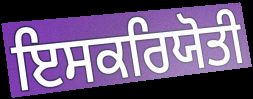
ਇਸਕਰਿਯੋਤੀ